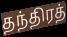
தந்திரத்